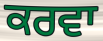
ਕਰਵਾ